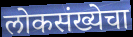
लोकसंख्येचा